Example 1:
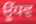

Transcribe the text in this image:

ਊੱਧਵ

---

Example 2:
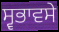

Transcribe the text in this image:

ਸ੍ਵਭਾਵਸੇ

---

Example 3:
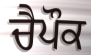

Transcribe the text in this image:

ਚੈਪੌਕ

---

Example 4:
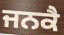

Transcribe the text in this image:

ਜਨਕੈ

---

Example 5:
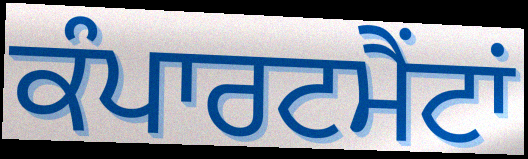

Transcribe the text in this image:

ਕੰਪਾਰਟਮੈਂਟਾਂ